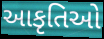
આકૃતિઓ